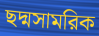
ছদ্মসামরিক